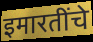
इमारतींचे